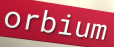
orbium